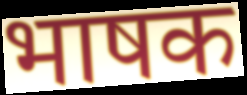
भाषक